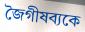
জৈগীষব্যকে